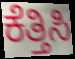
ಕೆತ್ತಿಸಿ